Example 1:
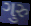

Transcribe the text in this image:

ગુરુ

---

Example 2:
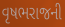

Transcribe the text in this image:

વૃષભરાજની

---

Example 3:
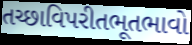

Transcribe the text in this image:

તચ્છાવિપરીતભૂતભાવો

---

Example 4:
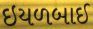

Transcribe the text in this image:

ઇયળબાઈ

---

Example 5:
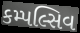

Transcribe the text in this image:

કમ્પલ્સિવ